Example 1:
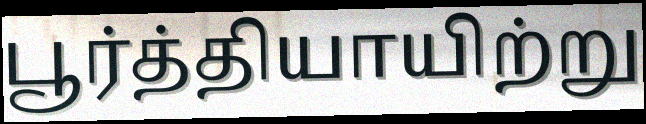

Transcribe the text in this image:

பூர்த்தியாயிற்று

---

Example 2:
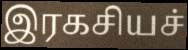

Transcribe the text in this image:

இரகசியச்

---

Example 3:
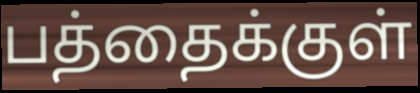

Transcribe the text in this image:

பத்தைக்குள்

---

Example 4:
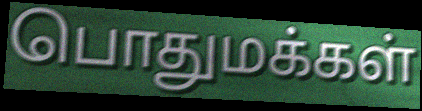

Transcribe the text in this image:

பொதுமக்கள்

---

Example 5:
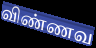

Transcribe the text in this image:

விண்ணவ